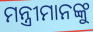
ମନ୍ତ୍ରୀମାନଙ୍କୁ